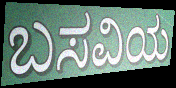
ಬಸವಿಯ